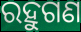
ରହୁଗଣ